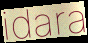
idara